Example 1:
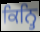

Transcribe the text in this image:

ਕਿਨ੍ਤਿ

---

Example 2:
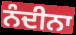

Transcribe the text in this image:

ਨੰਦੀਨਾ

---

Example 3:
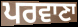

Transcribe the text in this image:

ਪਰਵਾਣਾ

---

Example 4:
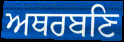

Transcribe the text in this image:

ਅਥਰਬਣਿ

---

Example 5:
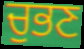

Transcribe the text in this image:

ਚੁਭਣ